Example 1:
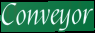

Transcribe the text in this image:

Conveyor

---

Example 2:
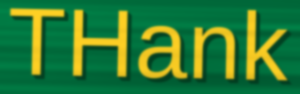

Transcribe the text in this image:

THank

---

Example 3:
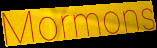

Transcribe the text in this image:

Mormons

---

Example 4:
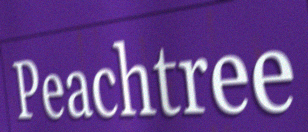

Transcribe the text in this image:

Peachtree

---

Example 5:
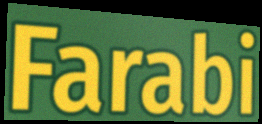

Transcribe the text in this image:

Farabi